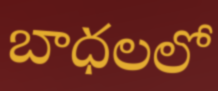
బాధలలో